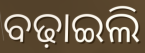
ବଢ଼ାଇଲି